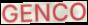
GENCO